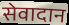
सेवादान